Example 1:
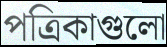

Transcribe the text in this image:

পত্রিকাগুলো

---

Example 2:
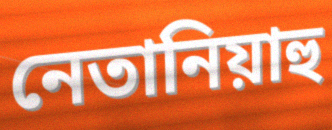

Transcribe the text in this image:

নেতানিয়াহু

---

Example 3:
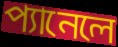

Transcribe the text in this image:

প্যানেলে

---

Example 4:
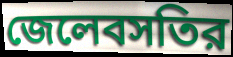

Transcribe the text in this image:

জেলেবসতির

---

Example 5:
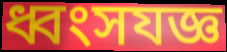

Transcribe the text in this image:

ধ্বংসযজ্ঞ